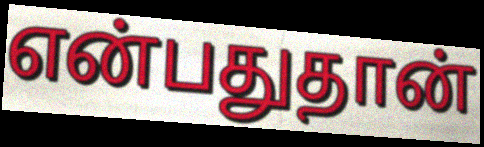
என்பதுதான்